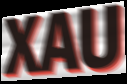
XAU